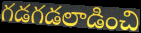
గడగడలాడించి